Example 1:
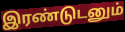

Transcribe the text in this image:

இரண்டுடனும்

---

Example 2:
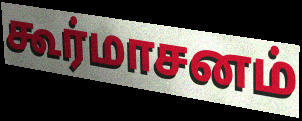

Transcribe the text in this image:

கூர்மாசனம்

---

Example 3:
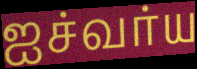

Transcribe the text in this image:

ஐச்வர்ய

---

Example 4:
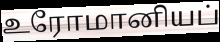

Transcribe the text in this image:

உரோமானியப்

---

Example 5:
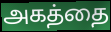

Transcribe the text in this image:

அகத்தை